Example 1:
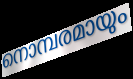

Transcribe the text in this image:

നൊമ്പരമായും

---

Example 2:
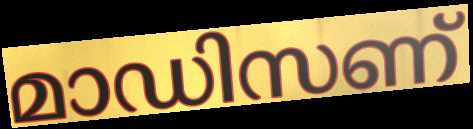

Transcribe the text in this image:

മാഡിസണ്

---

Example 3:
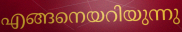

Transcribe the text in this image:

എങ്ങനെയറിയുന്നു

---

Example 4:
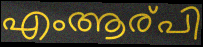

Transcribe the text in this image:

എംആര്പി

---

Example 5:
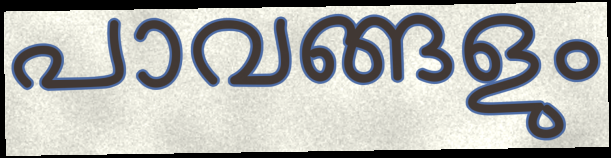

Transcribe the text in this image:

പാവങ്ങളും